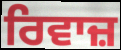
ਰਿਵਾਜ਼